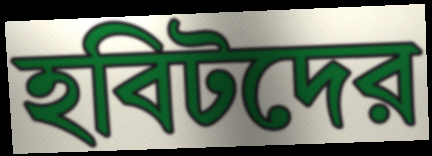
হবিটদের